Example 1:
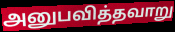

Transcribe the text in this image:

அனுபவித்தவாறு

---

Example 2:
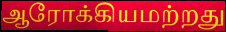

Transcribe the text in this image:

ஆரோக்கியமற்றது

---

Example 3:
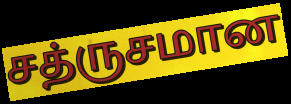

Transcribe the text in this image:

சத்ருசமான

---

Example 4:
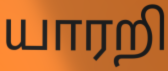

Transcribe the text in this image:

யாரறி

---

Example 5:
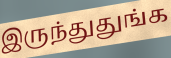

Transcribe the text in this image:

இருந்துதுங்க